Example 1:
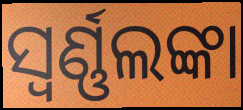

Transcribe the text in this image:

ସ୍ବର୍ଣ୍ଣଲଙ୍କା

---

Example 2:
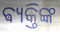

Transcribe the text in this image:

ଵ୍ୟକ୍ତିଙ୍କ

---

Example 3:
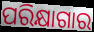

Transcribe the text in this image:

ପରିକ୍ଷାଗାର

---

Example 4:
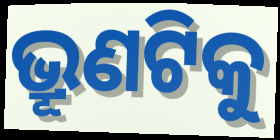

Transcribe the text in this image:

ଭ୍ରୂଣଟିକୁ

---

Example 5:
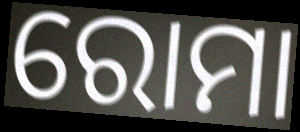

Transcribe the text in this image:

ରୋମା